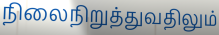
நிலைநிறுத்துவதிலும்